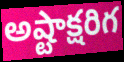
అష్టాక్షరిగ